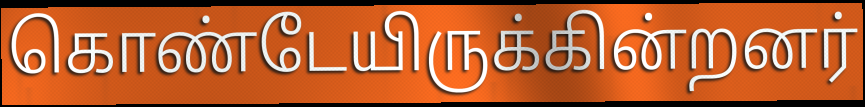
கொண்டேயிருக்கின்றனர்